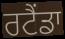
ਰਟੈਂਡਾ